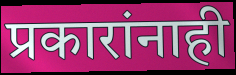
प्रकारांनाही